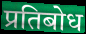
प्रतिबोध